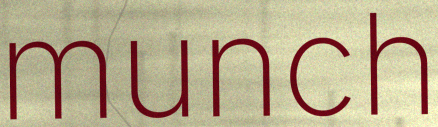
munch